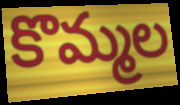
కొమ్మల